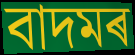
বাদমৰ